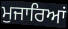
ਮੁਜਾਰਿਆਂ